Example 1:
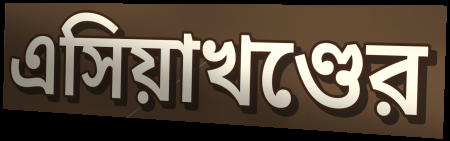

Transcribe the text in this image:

এসিয়াখণ্ডের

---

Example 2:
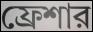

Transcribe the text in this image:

ফ্রেশার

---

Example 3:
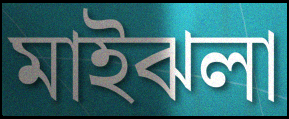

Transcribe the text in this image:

মাইঝলা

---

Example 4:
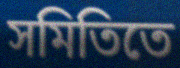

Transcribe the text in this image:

সমিতিতে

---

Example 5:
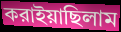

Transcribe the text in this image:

করাইয়াছিলাম